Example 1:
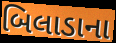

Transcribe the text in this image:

બિલાડાના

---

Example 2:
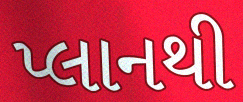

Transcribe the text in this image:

પ્લાનથી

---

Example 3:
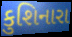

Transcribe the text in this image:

કુશિનારા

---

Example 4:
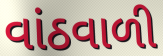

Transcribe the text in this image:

વાંઠવાળી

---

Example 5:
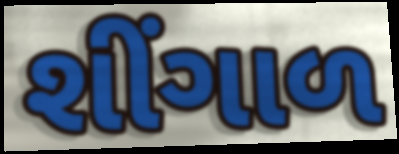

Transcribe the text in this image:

શીંગાળ